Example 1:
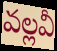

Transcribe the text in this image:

వల్లవీ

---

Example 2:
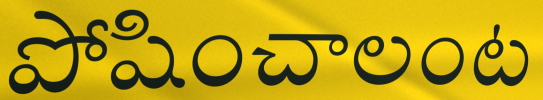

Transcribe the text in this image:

పోషించాలంట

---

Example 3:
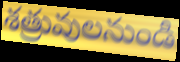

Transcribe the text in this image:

శత్రువులనుండి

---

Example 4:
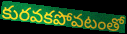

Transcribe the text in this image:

కురవకపోవటంతో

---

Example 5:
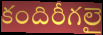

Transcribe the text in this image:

కందిరీగలై